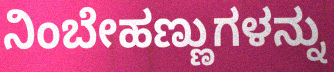
ನಿಂಬೇಹಣ್ಣುಗಳನ್ನು